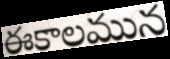
ఈకాలమున